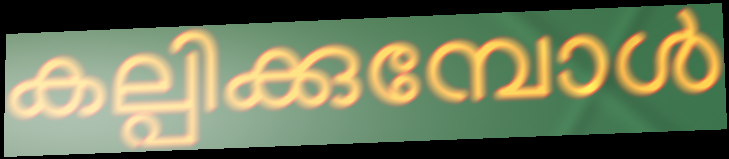
കല്പിക്കുമ്പോൾ